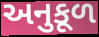
અનુકૂળ